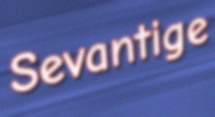
Sevantige